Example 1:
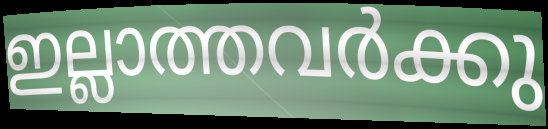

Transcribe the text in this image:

ഇല്ലാത്തവർക്കു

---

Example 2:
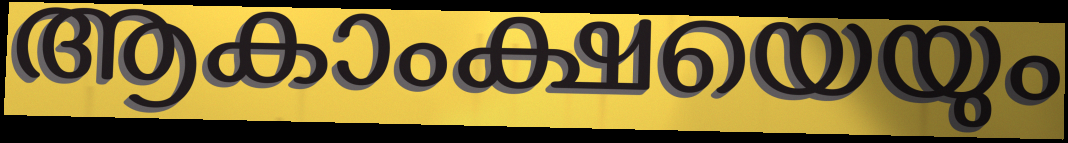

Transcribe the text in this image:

ആകാംക്ഷയെയും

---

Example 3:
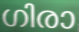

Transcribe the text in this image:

ഗിരാ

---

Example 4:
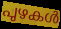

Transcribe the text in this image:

പുഴകൾ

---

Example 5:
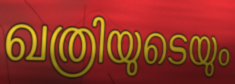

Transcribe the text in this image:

ഖത്രിയുടെയും